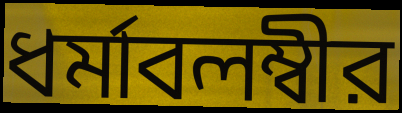
ধর্মাবলম্বীর